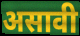
असावी